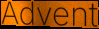
Advent